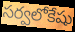
సర్వలోకేషు